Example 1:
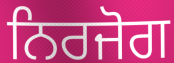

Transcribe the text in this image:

ਨਿਰਜੋਗ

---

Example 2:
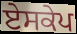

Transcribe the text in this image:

ਏਸਕੇਪ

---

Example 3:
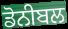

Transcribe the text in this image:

ਡੋਨੀਬਲ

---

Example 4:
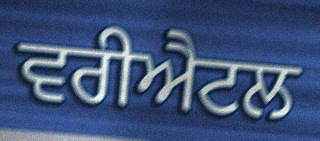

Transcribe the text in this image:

ਵਰੀਐਟਲ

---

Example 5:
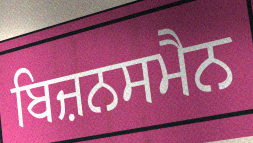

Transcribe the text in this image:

ਬਿਜ਼ਨਸਮੈਨ